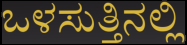
ಒಳಸುತ್ತಿನಲ್ಲಿ